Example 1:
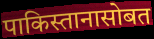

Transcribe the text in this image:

पाकिस्तानासोबत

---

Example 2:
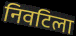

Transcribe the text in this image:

निवटिला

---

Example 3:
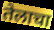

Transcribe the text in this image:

तेलाचा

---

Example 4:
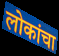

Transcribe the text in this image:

लोकांचा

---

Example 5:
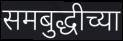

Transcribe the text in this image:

समबुद्धीच्या